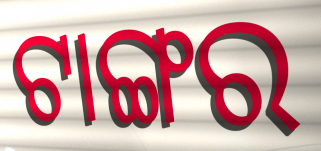
ଟାଙ୍ଗର